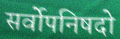
सर्वोपनिषदो